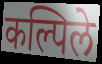
कल्पिले